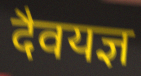
दैवयज्ञ